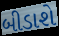
બીડાશે